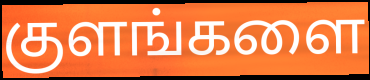
குளங்களை